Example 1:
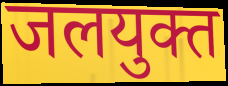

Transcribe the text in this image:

जलयुक्त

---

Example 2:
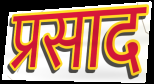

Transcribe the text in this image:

प्रसाद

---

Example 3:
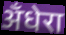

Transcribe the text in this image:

अँधेरा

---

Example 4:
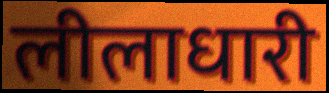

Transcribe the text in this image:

लीलाधारी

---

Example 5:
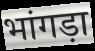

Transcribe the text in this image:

भांगड़ा